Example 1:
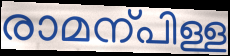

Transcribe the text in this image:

രാമന്പിള്ള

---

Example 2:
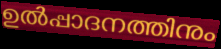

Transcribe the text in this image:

ഉൽപ്പാദനത്തിനും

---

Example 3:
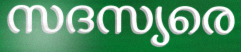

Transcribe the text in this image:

സദസ്യരെ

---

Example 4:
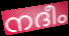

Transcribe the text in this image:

നദീം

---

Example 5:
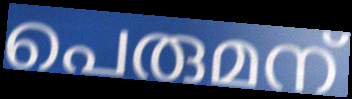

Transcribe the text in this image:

പെരുമന്